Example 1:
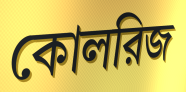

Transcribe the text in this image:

কোলরিজ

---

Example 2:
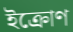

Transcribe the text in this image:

ইক্রোণ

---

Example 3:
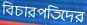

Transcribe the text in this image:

বিচারপতিদের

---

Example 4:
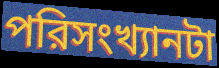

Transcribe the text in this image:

পরিসংখ্যানটা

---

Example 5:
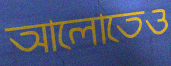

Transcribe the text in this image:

আলোতেও